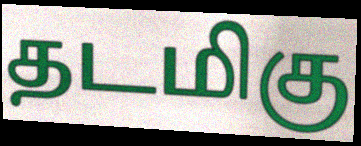
தடமிகு